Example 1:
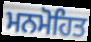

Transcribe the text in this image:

ਮਨਮੋਹਿਤ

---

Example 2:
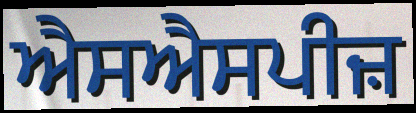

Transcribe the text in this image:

ਐਸਐਸਪੀਜ਼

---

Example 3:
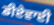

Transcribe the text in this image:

ਡੀਏਵਾਈ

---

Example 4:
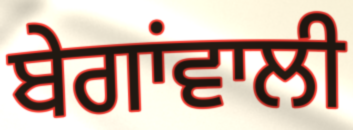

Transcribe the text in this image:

ਬੇਗਾਂਵਾਲੀ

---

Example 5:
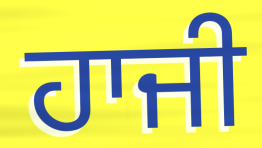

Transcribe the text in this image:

ਹਾਜੀ